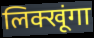
लिक्खूंगा